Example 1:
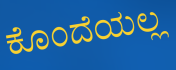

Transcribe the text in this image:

ಕೊಂದೆಯಲ್ಲ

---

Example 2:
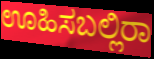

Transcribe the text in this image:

ಊಹಿಸಬಲ್ಲಿರಾ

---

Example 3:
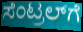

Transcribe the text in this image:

ಸೆಂಟ್ರಲ್‌ಗೆ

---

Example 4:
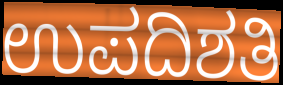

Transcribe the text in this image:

ಉಪದಿಶತಿ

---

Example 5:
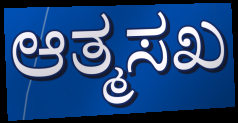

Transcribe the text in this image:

ಆತ್ಮಸಖ